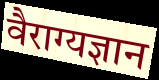
वैराग्यज्ञान